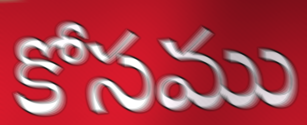
కోసము